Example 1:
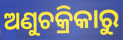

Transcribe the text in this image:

ଅଣୁଚକ୍ରିକାରୁ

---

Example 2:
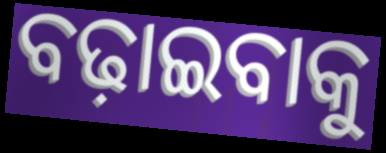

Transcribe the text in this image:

ବଢ଼ାଇବାକୁ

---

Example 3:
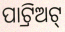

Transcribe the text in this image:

ପାଟ୍ରିଅଟ୍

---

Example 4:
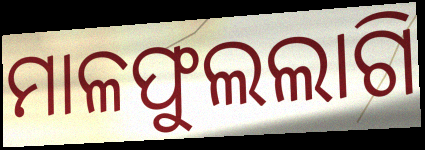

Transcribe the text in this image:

ମାଳଫୁଲଲାଗି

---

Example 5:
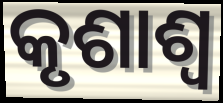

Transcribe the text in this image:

କୃଶାଶ୍ୱ